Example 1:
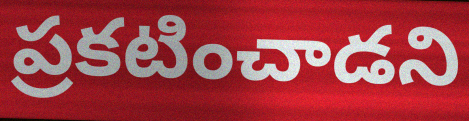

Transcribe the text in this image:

ప్రకటించాడని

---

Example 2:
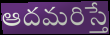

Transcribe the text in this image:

ఆదమరిస్తే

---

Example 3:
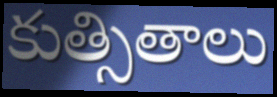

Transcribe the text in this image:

కుత్సితాలు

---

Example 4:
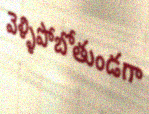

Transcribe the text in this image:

వెళ్ళిపోబోతుండగా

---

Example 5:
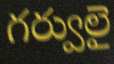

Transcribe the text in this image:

గర్వులై